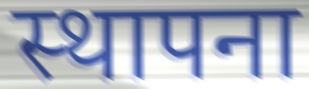
स्थापना